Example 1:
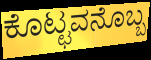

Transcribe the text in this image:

ಕೊಟ್ಟವನೊಬ್ಬ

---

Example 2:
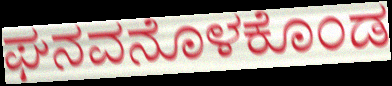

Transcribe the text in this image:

ಘನವನೊಳಕೊಂಡ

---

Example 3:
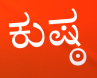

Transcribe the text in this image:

ಕುಷ್ಠ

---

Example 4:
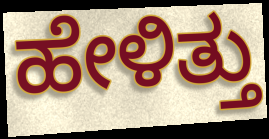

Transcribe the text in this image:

ಹೇಳಿತ್ತು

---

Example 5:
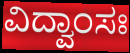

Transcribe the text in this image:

ವಿದ್ವಾಂಸಃ